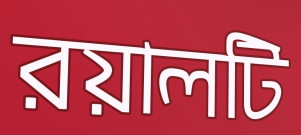
রয়ালটি